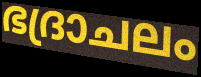
ഭദ്രാചലം